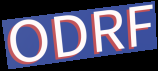
ODRF